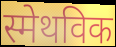
स्मेथविक